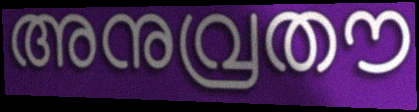
അനുവ്രതൗ